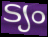
ട്യം